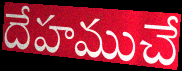
దేహముచే